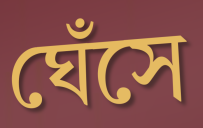
ঘেঁসে